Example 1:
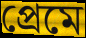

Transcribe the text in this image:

প্রেমে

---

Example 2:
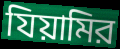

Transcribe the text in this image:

যিয়ামির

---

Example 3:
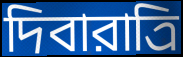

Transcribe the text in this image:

দিবারাত্রি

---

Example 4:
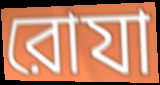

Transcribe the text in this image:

রোযা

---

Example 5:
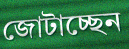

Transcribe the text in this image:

জোটাচ্ছেন